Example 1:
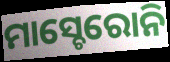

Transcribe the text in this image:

ମାସ୍ଚେରୋନି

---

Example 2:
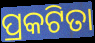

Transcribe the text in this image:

ପ୍ରକଟିତା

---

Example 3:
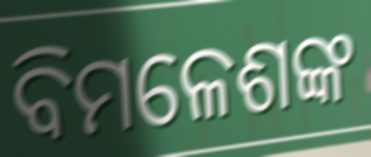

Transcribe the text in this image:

ବିମଳେଶଙ୍କ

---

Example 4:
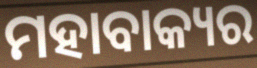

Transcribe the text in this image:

ମହାବାକ୍ୟର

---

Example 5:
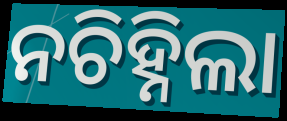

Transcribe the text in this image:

ନଚିହ୍ନିଲା